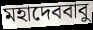
মহাদেববাবু